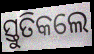
ସ୍ତୁତିକଲେ